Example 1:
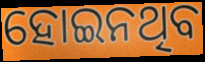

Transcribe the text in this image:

ହୋଇନଥିବ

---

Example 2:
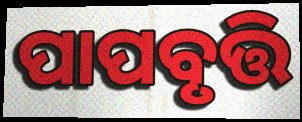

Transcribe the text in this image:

ପାପବୃତ୍ତି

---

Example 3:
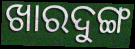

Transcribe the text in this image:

ଖାରଦୁଙ୍ଗ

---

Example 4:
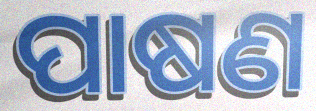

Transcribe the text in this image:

ପାଷଣ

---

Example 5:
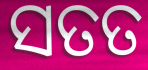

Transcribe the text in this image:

ସତତ